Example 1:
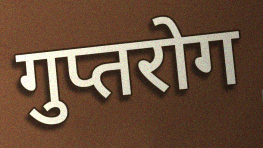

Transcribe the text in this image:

गुप्तरोग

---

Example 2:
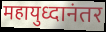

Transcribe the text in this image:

महायुध्दानंतर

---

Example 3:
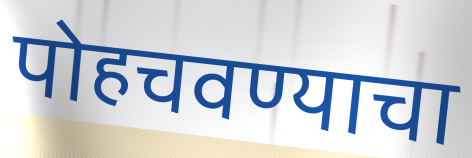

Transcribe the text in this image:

पोहचवण्याचा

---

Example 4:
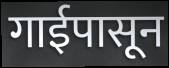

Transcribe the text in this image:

गाईपासून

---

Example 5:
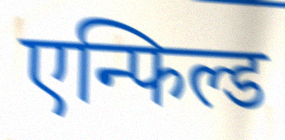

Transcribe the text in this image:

एन्फिल्ड